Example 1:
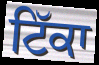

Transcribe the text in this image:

ਟਿੱਕਾ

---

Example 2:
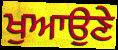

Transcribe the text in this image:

ਖੁਆਉਣੇ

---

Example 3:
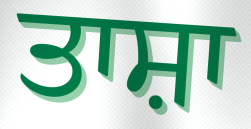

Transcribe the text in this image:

ਤਾਸ਼ਾ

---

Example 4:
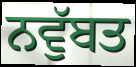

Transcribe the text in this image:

ਨਵੁੱਬਤ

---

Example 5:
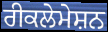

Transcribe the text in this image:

ਰੀਕਲੇਮੇਸ਼ਨ